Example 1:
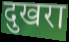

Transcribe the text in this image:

दुखरा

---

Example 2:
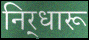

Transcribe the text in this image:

निर्धारू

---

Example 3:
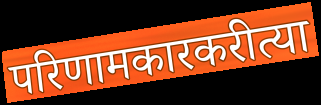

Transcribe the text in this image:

परिणामकारकरीत्या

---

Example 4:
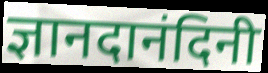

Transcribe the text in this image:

ज्ञानदानंदिनी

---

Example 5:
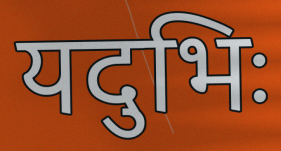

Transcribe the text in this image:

यदुभिः